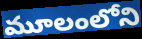
మూలంలోని